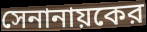
সেনানায়কের